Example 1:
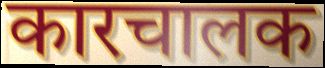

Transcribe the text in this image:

कारचालक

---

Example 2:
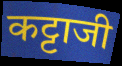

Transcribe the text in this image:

कट्टाजी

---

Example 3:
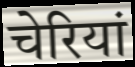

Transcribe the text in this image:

चेरियां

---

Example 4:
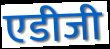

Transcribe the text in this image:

एडीजी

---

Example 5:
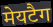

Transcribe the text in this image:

मेयटैग